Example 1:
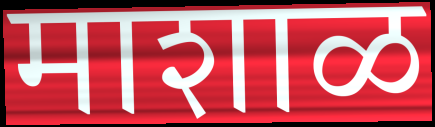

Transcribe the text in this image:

माशाळ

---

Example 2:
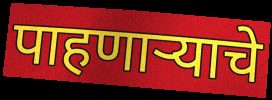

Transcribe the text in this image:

पाहणाऱ्याचे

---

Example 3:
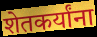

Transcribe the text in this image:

शेतकर्यांना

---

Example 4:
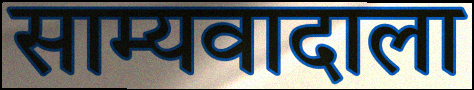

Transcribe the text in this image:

साम्यवादाला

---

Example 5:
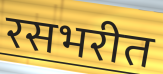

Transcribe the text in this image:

रसभरीत